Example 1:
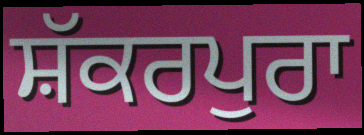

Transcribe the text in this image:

ਸ਼ੱਕਰਪੁਰਾ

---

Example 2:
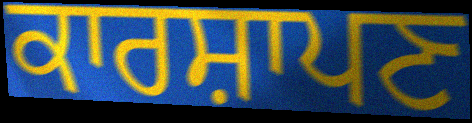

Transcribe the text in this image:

ਕਾਰਸ਼ਾਪਣ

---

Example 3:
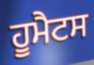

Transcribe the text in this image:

ਹੂਮੈਟਸ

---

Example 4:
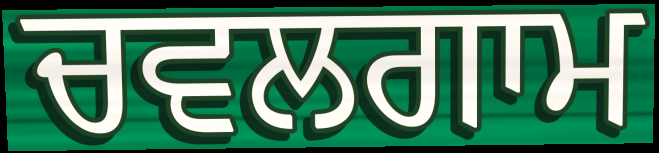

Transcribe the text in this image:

ਚਵਲਗਾਮ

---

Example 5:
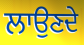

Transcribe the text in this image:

ਲਾਉਣਦੇ